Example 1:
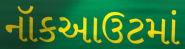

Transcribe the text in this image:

નૉકઆઉટમાં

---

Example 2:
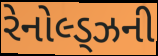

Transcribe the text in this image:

રેનોલ્ડ્ઝની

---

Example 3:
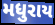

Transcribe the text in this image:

મધુરાય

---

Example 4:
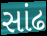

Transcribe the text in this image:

સાંઢ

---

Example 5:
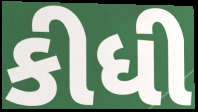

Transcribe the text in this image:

કીધી